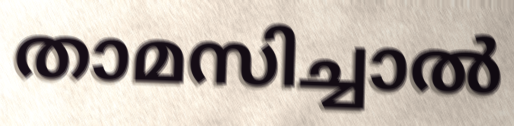
താമസിച്ചാൽ